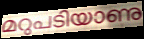
മറുപടിയാണു